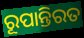
ରୂପାନ୍ତିରତ